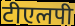
टीएलपी